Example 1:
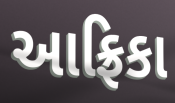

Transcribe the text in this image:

આફ્રિકા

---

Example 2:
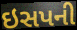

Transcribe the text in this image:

ઇસપની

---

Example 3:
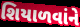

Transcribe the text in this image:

શિયાળવાંને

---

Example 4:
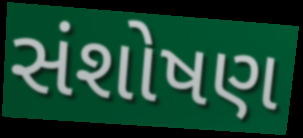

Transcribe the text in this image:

સંશોષણ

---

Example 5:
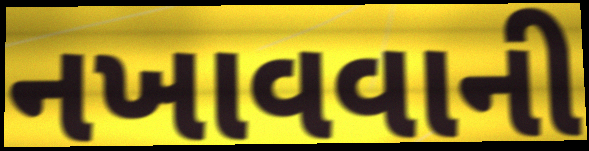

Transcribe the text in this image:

નખાવવાની